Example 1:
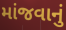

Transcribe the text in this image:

માંજવાનું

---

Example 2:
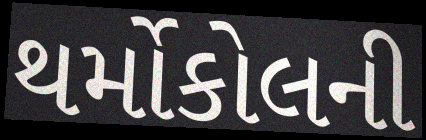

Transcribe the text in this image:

થર્મોકોલની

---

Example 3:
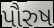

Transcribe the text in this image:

પૌરુષ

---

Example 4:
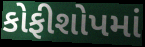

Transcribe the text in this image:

કોફીશોપમાં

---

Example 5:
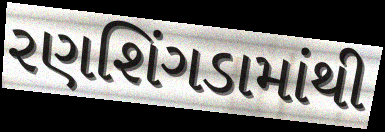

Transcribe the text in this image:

રણશિંગડામાંથી